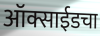
ऑक्साईडचा